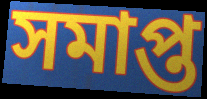
সমাপ্ত